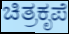
ಚಿತ್ರಕೃಪೆ